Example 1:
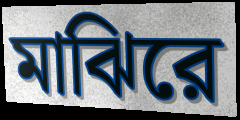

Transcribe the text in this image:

মাঝিরে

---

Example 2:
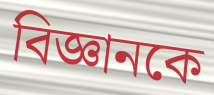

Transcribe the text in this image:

বিজ্ঞানকে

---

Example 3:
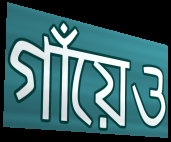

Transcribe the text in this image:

গাঁয়েও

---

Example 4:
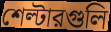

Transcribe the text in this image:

শেল্টারগুলি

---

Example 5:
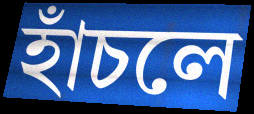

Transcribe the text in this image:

হাঁচলে